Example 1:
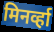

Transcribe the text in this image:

मिनर्व्हा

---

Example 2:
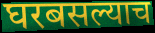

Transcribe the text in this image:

घरबसल्याच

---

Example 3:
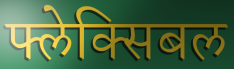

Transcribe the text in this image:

फ्लेक्सिबल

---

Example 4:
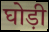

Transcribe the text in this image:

घोड़ी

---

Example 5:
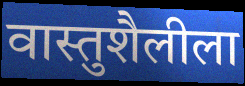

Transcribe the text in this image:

वास्तुशैलीला